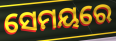
ସେମୟରେ